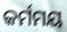
କର୍ମମୟ